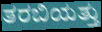
ತರಬಿಯತ್ತು